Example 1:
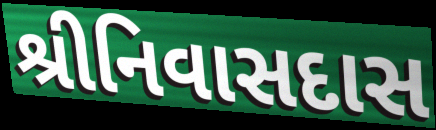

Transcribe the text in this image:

શ્રીનિવાસદાસ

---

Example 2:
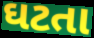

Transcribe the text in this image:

ઘટતા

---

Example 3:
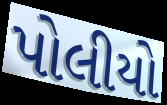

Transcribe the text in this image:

પોલીયો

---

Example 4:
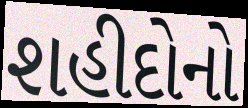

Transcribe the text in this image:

શહીદોનો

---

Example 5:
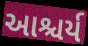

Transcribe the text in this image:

આશ્ચર્ય